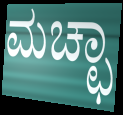
ಮಚ್ಛಾ